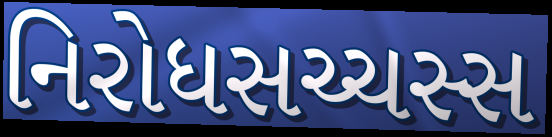
નિરોધસચ્ચસ્સ